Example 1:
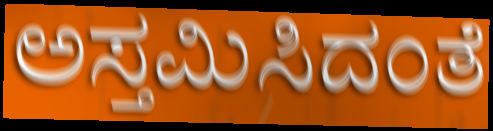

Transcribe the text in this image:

ಅಸ್ತಮಿಸಿದಂತೆ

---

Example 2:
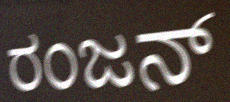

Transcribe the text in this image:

ರಂಜನ್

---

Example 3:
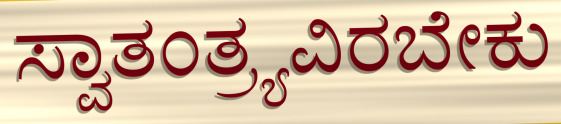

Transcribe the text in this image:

ಸ್ವಾತಂತ್ರ್ಯವಿರಬೇಕು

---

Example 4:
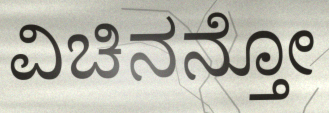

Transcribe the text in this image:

ವಿಚಿನನ್ತೋ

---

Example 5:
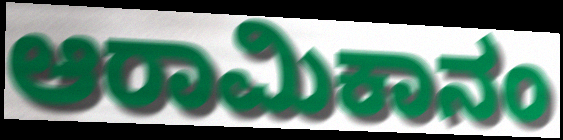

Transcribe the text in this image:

ಆರಾಮಿಕಾನಂ